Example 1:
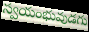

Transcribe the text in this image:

స్వయంభువుడగు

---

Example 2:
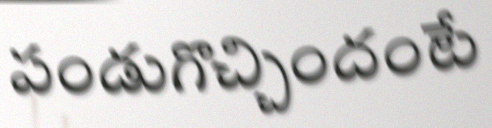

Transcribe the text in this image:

పండుగొచ్చిందంటే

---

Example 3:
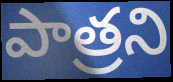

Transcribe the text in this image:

పాత్రని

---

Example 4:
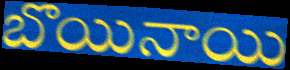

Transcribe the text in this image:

బొయినాయి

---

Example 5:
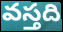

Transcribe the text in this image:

వస్తది